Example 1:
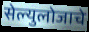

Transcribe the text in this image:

सेल्युलोजाचे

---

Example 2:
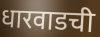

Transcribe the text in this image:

धारवाडची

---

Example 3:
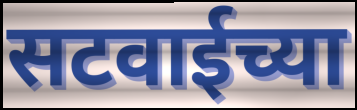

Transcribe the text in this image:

सटवाईच्या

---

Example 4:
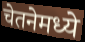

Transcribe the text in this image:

चेतनेमध्ये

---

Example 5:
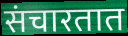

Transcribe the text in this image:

संचारतात